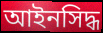
আইনসিদ্ধ